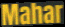
Mahar